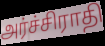
அர்ச்சிராதி